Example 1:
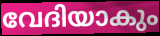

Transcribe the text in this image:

വേദിയാകും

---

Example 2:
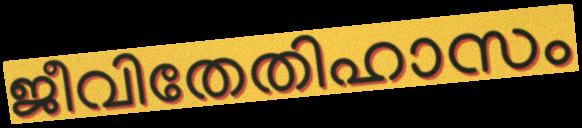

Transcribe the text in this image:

ജീവിതേതിഹാസം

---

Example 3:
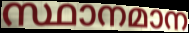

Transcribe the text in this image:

സ്ഥാനമാന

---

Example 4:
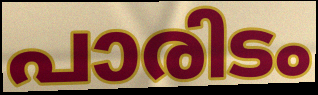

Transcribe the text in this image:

പാരിടം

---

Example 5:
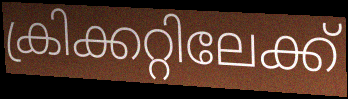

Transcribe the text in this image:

ക്രിക്കറ്റിലേക്ക്